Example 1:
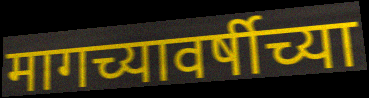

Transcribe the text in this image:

मागच्यावर्षीच्या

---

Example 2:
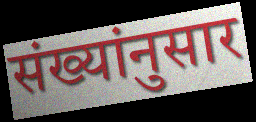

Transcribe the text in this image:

संख्यांनुसार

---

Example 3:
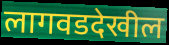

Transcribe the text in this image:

लागवडदेखील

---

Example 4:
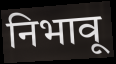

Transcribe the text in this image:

निभावू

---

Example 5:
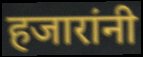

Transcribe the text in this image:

हजारांनी